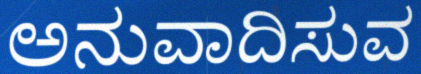
ಅನುವಾದಿಸುವ